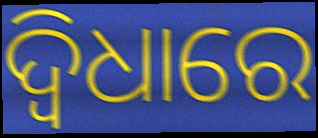
ଦ୍ଵିଧାରେ